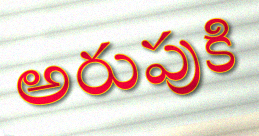
అరుపుకి